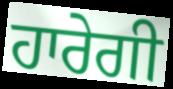
ਹਾਰੇਗੀ